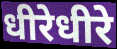
धीरेधीरे